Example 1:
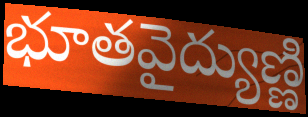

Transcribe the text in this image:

భూతవైద్యుణ్ణి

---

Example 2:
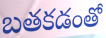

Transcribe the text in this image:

బతకడంతో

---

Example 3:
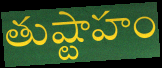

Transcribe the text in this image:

తుష్టాహం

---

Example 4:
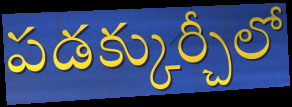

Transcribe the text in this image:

పడక్కుర్చీలో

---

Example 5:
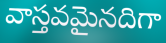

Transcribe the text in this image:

వాస్తవమైనదిగా